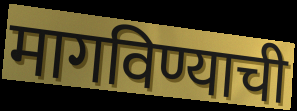
मागविण्याची